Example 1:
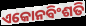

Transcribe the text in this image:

ଏକୋନବିଂଶତି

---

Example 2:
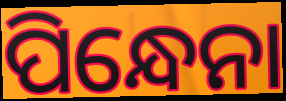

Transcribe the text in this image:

ପିନ୍ଧେନା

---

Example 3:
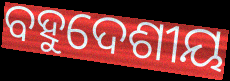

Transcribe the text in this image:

ବହୁଦେଶୀୟ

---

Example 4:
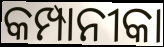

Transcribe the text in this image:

କମ୍ପାନୀକା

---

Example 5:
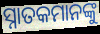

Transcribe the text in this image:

ସ୍ନାତକମାନଙ୍କୁ